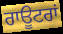
ਰਾਊਟਰਾਂ